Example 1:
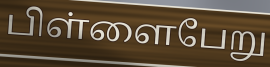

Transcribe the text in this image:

பிள்ளைபேறு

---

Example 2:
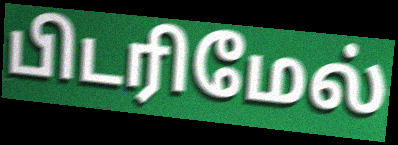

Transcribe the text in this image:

பிடரிமேல்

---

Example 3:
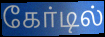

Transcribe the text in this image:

கேர்டில்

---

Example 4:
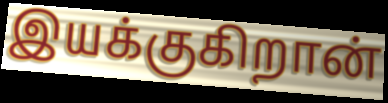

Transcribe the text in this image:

இயக்குகிறான்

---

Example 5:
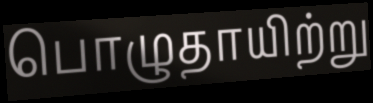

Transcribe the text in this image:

பொழுதாயிற்று